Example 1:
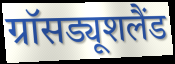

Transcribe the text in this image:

ग्रॉसड्यूशलैंड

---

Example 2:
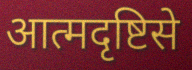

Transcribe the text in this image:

आत्मदृष्टिसे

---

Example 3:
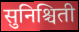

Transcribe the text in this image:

सुनिश्चिती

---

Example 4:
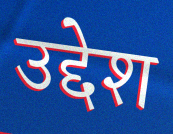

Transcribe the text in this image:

उद्देश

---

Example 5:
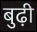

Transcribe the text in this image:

बुढ़ी